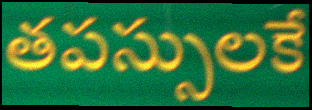
తపస్సులకే